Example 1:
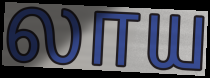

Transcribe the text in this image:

லாய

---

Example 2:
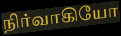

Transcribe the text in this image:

நிர்வாகியோ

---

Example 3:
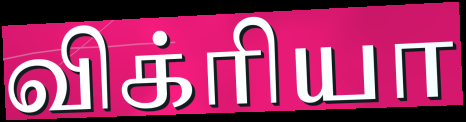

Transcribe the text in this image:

விக்ரியா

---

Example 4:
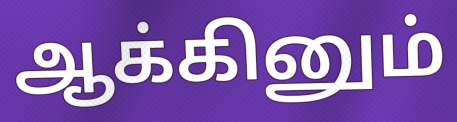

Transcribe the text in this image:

ஆக்கினும்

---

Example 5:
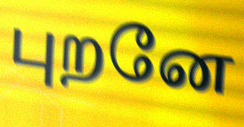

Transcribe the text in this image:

புறனே